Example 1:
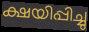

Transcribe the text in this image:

ക്ഷയിപ്പിച്ചു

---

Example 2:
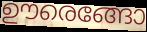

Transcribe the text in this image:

ഊരെങ്ങോ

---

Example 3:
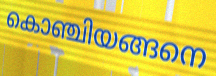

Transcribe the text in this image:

കൊഞ്ചിയങ്ങനെ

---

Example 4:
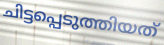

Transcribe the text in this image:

ചിട്ടപ്പെടുത്തിയത്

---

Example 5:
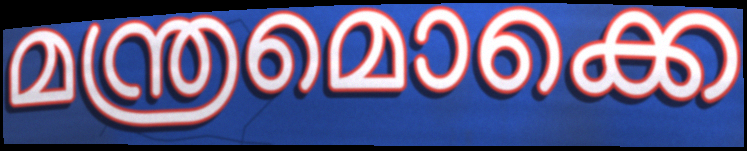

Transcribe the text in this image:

മന്ത്രമൊക്കെ